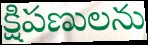
క్షిపణులను